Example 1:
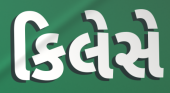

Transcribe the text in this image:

કિલેસે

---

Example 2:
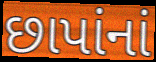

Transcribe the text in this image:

છાપાંનાં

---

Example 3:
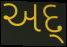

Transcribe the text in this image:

અદ્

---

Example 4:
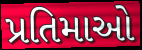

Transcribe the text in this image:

પ્રતિમાઓ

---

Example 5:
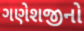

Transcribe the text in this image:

ગણેશજીનો